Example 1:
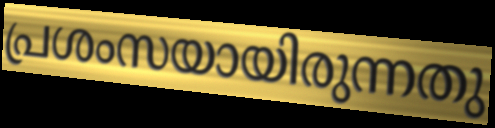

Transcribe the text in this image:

പ്രശംസയായിരുന്നതു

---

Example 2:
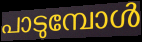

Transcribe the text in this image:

പാടുമ്പോൾ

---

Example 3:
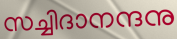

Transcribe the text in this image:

സച്ചിദാനന്ദനു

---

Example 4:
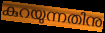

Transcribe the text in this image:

കുറയുന്നതിനു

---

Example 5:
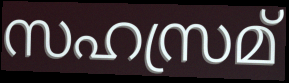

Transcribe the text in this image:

സഹസ്രമ്